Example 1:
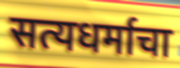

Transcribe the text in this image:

सत्यधर्माचा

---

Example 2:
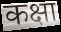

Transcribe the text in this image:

कक्षा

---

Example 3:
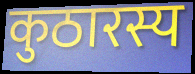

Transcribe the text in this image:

कुठारस्य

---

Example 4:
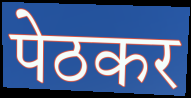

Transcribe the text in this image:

पेठकर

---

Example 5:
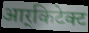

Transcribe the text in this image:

आर्किटेक्ट